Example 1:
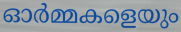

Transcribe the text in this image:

ഓർമ്മകളെയും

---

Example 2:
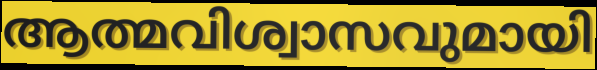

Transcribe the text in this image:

ആത്മവിശ്വാസവുമായി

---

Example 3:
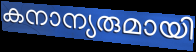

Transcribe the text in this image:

കനാന്യരുമായി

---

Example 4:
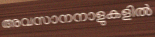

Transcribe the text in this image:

അവസാനനാളുകളിൽ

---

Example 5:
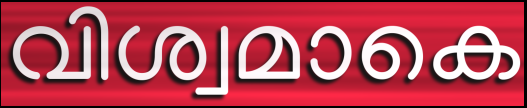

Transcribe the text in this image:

വിശ്വമാകെ